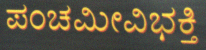
ಪಂಚಮೀವಿಭಕ್ತಿ